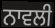
ਨਾਵਲੀ